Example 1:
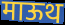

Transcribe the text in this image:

माऊथ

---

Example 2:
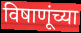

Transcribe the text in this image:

विषाणूंच्या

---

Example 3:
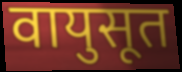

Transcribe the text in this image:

वायुसूत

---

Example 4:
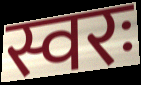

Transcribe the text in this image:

स्वरः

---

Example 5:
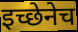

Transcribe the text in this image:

इच्छेनेच